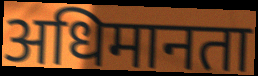
अधिमानता